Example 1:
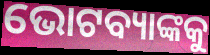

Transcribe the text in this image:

ଭୋଟବ୍ୟାଙ୍କକୁ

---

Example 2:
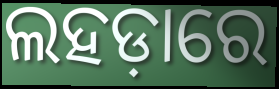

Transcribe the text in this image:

ଲହଡ଼ାରେ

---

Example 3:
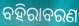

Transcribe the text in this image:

ବହିରାବରଣ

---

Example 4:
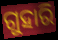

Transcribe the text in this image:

ଗୁହାରି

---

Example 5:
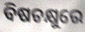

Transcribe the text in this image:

ବିଷଚକ୍ଷୁରେ